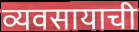
व्यवसायाची